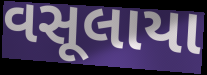
વસૂલાયા